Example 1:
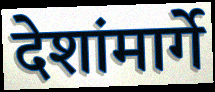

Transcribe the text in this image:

देशांमार्गे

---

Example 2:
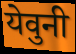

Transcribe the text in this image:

येवुनी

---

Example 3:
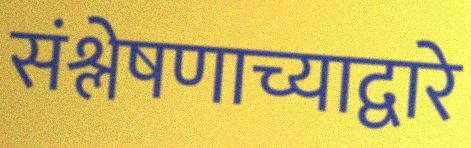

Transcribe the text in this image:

संश्लेषणाच्याद्वारे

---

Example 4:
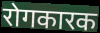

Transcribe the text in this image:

रोगकारक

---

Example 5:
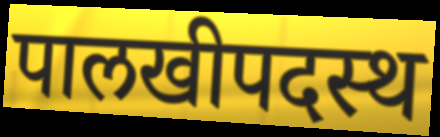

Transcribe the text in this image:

पालखीपदस्थ